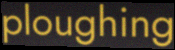
ploughing